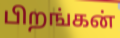
பிறங்கன்